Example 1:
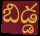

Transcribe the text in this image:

బిడ్డ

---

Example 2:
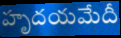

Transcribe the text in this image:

హృదయమేదీ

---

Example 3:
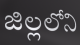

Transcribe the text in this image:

జిల్లలోని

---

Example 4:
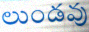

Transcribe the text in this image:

లుండవు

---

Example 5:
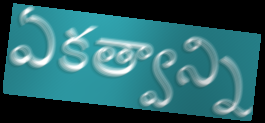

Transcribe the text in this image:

ఏకత్వాన్ని